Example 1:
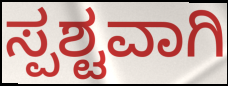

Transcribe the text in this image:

ಸ್ಪಶ್ಟವಾಗಿ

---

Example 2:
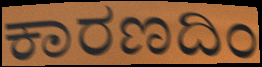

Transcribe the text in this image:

ಕಾರಣದಿಂ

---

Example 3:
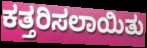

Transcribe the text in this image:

ಕತ್ತರಿಸಲಾಯಿತು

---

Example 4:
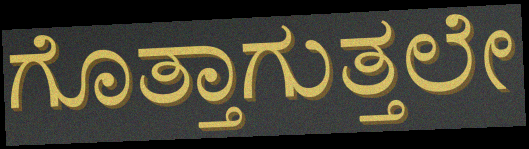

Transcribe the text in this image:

ಗೊತ್ತಾಗುತ್ತಲೇ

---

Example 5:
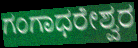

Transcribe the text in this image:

ಗಂಗಾಧರೇಶ್ವರ